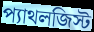
প্যাথলজিস্ট